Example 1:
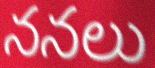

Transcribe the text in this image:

ననలు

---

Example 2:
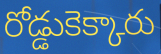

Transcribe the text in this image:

రోడ్డుకెక్కారు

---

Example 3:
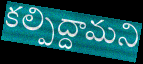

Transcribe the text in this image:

కల్పిద్దామని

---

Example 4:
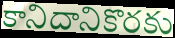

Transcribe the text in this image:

కానిదానికొరకు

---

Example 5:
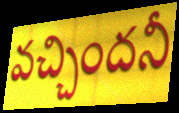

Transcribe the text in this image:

వచ్చిందనీ